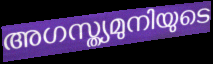
അഗസ്ത്യമുനിയുടെ